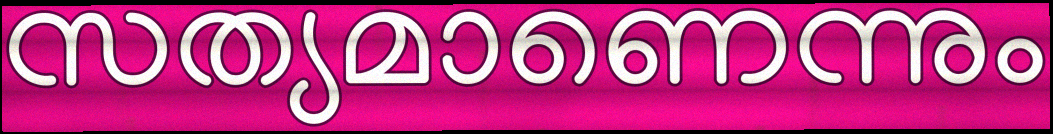
സത്യമാണെന്നും